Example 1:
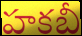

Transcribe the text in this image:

హకబీ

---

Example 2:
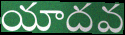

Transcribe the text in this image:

యాదవ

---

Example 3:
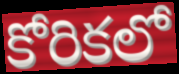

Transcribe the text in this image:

కోరికలో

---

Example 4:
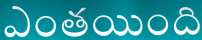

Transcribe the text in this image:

ఎంతయింది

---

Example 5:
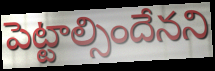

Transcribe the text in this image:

పెట్టాల్సిందేనని